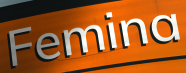
Femina